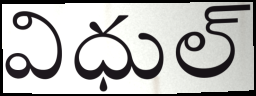
విధుల్